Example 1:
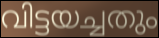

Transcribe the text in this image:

വിട്ടയച്ചതും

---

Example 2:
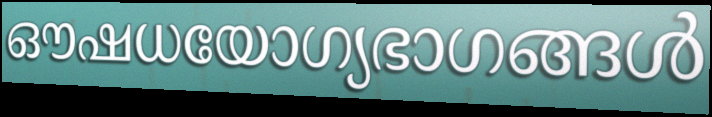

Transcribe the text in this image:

ഔഷധയോഗ്യഭാഗങ്ങൾ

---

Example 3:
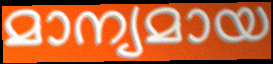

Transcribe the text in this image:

മാന്യമായ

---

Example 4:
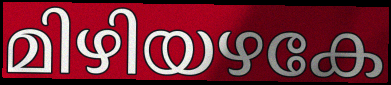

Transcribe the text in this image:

മിഴിയഴകേ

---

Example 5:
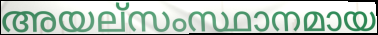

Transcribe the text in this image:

അയല്സംസ്ഥാനമായ